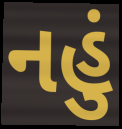
નહું